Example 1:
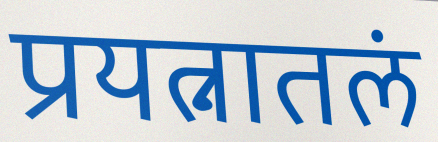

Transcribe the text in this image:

प्रयत्नातलं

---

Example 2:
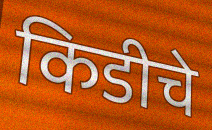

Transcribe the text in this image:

किडीचे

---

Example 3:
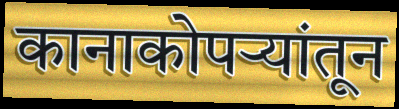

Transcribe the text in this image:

कानाकोपर्‍यांतून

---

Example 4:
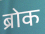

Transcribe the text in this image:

ब्रोक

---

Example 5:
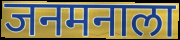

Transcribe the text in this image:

जनमनाला